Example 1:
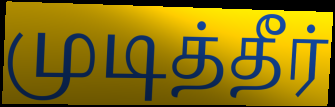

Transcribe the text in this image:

முடித்தீர்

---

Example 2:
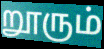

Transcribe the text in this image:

றூரும்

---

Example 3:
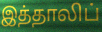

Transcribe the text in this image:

இத்தாலிப்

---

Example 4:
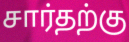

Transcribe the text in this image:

சார்தற்கு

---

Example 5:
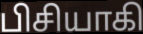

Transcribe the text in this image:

பிசியாகி